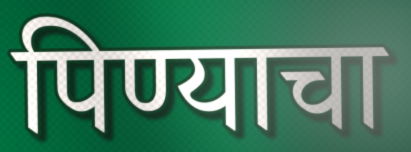
पिण्याचा